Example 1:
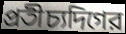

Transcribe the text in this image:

প্রতীচ্যদিগের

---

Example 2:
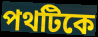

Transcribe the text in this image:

পথটিকে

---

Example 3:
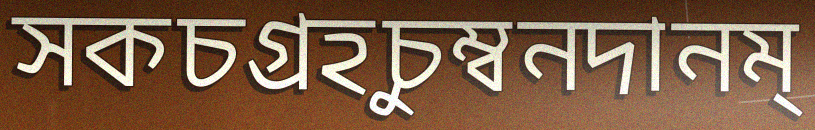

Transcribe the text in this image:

সকচগ্রহচুম্বনদানম্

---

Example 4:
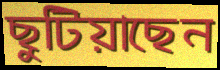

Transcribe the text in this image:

ছুটিয়াছেন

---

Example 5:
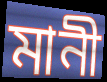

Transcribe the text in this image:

মানী